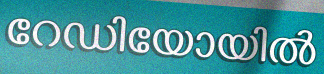
റേഡിയോയിൽ